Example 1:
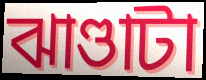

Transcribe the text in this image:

ঝাণ্ডাটা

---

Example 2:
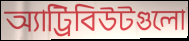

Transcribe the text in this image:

অ্যাট্রিবিউটগুলো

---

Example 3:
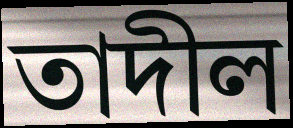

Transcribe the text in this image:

তাদীল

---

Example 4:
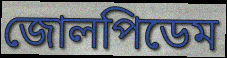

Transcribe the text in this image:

জোলপিডেম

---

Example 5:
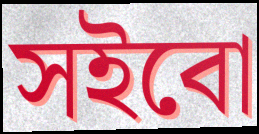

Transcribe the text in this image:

সইবো